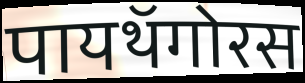
पायथॅगोरस